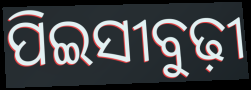
ପିଇସୀବୁଢ଼ୀ